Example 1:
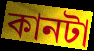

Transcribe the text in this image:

কানটা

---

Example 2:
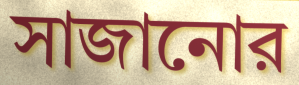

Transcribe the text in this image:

সাজানোর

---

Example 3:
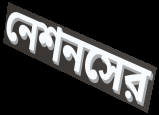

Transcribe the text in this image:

নেশনসের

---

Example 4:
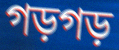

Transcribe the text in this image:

গড়গড়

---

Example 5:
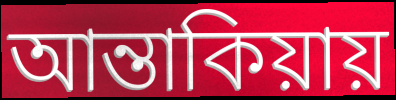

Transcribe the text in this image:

আন্তাকিয়ায়